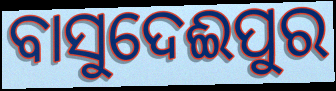
ବାସୁଦେଈପୁର